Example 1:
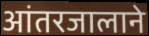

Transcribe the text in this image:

आंतरजालाने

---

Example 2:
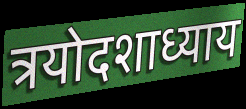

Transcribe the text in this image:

त्रयोदशाध्याय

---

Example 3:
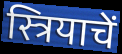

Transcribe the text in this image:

स्त्रियाचें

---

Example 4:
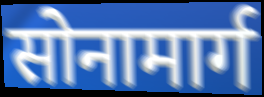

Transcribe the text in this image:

सोनामार्ग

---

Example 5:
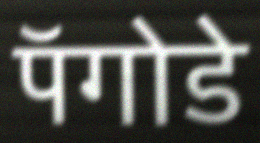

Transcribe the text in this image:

पॅगोडे